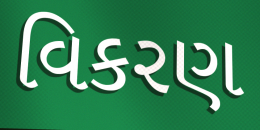
વિકરણ